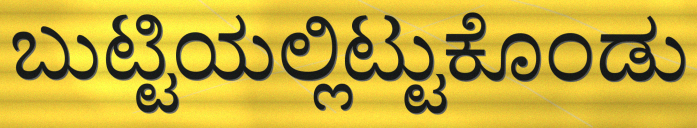
ಬುಟ್ಟಿಯಲ್ಲಿಟ್ಟುಕೊಂಡು